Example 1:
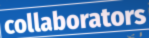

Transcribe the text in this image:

collaborators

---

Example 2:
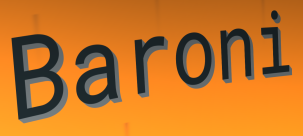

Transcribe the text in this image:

Baroni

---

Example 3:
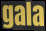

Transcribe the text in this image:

gala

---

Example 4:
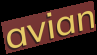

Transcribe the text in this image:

avian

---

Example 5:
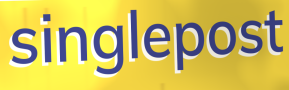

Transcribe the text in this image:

singlepost